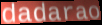
dadarao